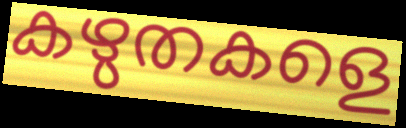
കഴുതകളെ